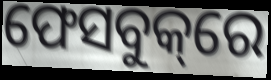
ଫେସବୁକ୍‌ରେ